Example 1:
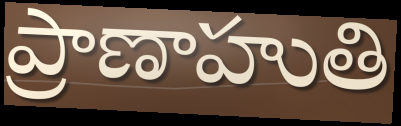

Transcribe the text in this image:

ప్రాణాహుతి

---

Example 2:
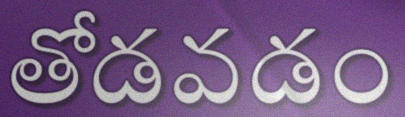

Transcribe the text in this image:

తోడవడం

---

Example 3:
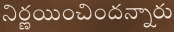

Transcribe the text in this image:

నిర్ణయించిందన్నారు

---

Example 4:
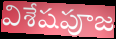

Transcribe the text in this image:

విశేషపూజ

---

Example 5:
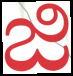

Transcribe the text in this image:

జి